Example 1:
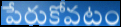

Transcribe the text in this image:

పేరుకోవటం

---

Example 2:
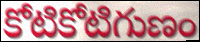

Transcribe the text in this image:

కోటికోటిగుణం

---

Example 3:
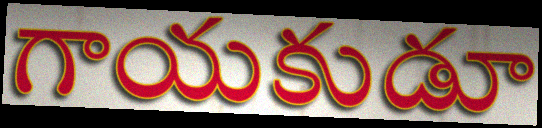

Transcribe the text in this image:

గాయకుడూ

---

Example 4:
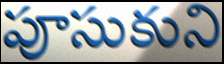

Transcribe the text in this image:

పూసుకుని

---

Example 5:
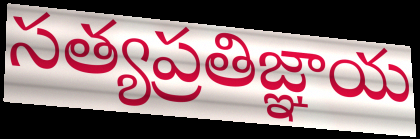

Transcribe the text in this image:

సత్యప్రతిజ్ఞాయ